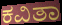
ಕವಿತಾ